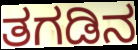
ತಗಡಿನ